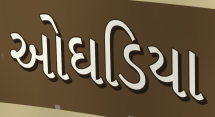
ઓઘડિયા